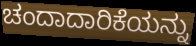
ಚಂದಾದಾರಿಕೆಯನ್ನು